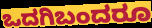
ಒದಗಿಬಂದರೂ